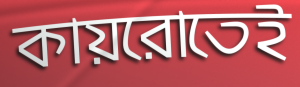
কায়রোতেই